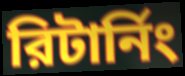
রিটার্নিং